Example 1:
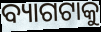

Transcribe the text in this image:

ବ୍ୟାଗଟାକୁ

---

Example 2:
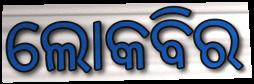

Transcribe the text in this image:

ଲୋକବିର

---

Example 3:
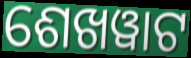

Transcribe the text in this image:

ଶେଖୱାଟ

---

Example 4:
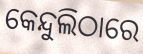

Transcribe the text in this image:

କେନ୍ଦୁଲିଠାରେ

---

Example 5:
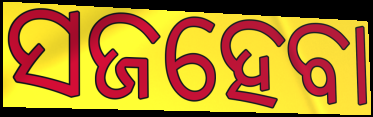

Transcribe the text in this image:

ସଜହେବା